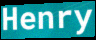
Henry